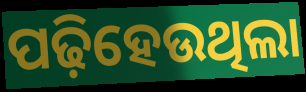
ପଢ଼ିହେଉଥିଲା